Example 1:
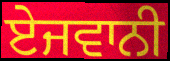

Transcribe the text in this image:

ਏਜਵਾਨੀ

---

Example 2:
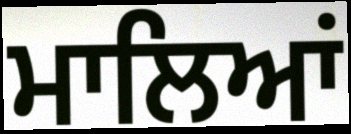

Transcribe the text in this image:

ਮਾਲਿਆਂ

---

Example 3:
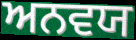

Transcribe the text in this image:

ਅਨਵਯ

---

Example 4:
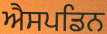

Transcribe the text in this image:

ਐਸਪਡਿਨ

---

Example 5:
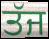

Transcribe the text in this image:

ਤੱਜ